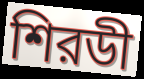
শিরডী